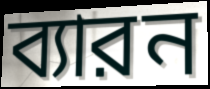
ব্যারন